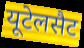
यूटेलसैट